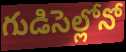
గుడిసెల్లోనో